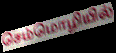
செம்மொழியில்